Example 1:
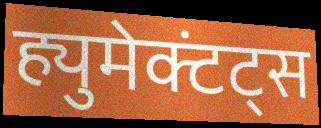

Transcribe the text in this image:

ह्युमेक्टंट्स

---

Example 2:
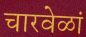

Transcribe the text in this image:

चारवेळां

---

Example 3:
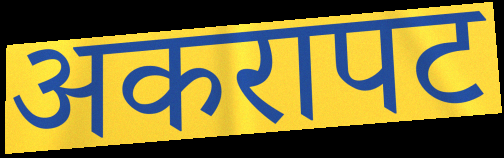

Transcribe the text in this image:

अकरापट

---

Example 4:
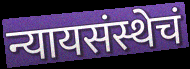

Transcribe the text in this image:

न्यायसंस्थेचं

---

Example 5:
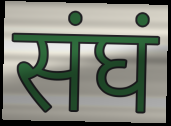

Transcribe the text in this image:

संघं